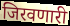
जिरवणारी